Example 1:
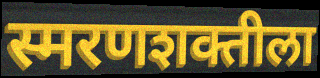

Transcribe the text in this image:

स्मरणशक्तीला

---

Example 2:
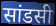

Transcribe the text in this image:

सांडसी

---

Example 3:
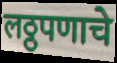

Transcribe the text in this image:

लठ्ठपणाचे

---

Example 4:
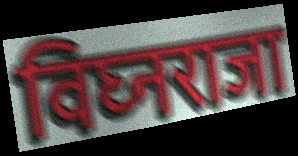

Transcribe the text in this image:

विघ्नराजा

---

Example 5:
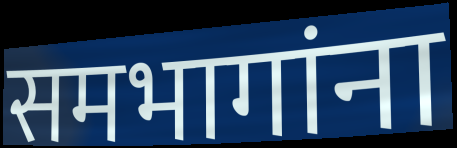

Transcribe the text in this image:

समभागांना